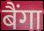
बैंगा